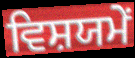
ਵਿਸ਼ਯਮੇਂ